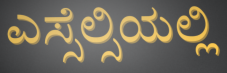
ಎಸ್ಸೆಲ್ಸಿಯಲ್ಲಿ